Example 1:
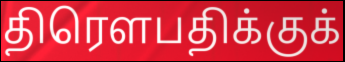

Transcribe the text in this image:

திரௌபதிக்குக்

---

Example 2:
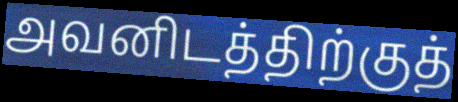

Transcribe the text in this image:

அவனிடத்திற்குத்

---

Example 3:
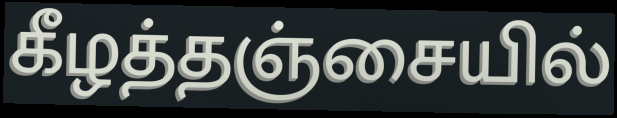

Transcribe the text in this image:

கீழத்தஞ்சையில்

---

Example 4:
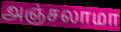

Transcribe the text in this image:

அஞ்சலாமா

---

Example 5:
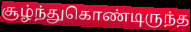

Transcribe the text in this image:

சூழ்ந்துகொண்டிருந்த